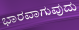
ಭಾರವಾಗುವುದು